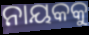
ନାୟକକୁ